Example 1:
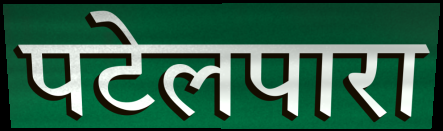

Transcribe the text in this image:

पटेलपारा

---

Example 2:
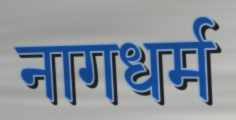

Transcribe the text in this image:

नागधर्म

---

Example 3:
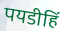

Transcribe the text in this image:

पयडीहिं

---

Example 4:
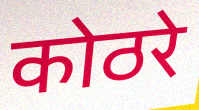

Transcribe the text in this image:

कोठरे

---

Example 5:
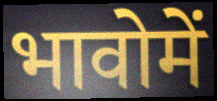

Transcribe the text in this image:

भावोमें